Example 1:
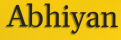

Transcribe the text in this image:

Abhiyan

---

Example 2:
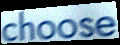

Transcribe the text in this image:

choose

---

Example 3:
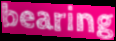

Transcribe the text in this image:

bearing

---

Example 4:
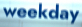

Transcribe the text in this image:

weekday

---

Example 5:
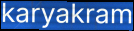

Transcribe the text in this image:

karyakram